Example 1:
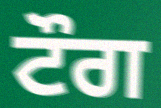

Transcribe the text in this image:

ਟੌਗ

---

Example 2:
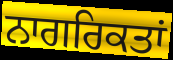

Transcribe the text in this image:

ਨਾਗਰਿਕਤਾਂ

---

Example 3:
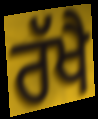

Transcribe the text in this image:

ਰੱਖੈ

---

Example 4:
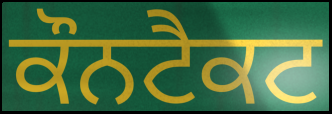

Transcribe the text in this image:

ਕੌਨਟੈਕਟ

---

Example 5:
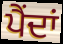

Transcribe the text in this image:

ਪੈਂਦਾਂ